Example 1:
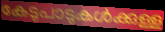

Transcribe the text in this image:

കേടുപാടുകൾക്കുള്ള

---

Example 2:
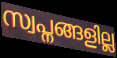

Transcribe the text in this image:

സ്വപ്നങ്ങളില്ല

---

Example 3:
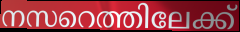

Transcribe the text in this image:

നസറെത്തിലേക്ക്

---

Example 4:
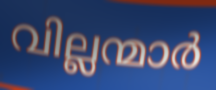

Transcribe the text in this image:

വില്ലന്മാർ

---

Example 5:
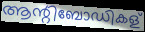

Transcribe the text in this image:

ആന്റിബോഡികള്